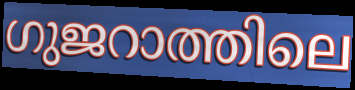
ഗുജറാത്തിലെ